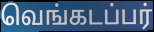
வெங்கடப்பர்